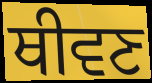
ਥੀਵਣ